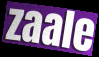
zaale